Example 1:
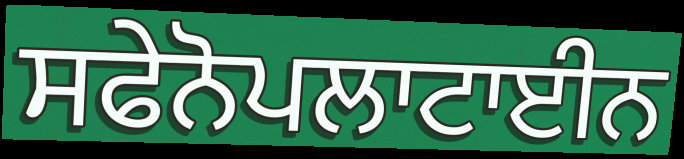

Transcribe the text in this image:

ਸਫੇਨੋਪਲਾਟਾਈਨ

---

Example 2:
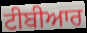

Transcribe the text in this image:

ਟੀਬੀਆਰ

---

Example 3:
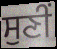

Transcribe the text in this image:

ਸੁਣੀਂ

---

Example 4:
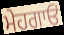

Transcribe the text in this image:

ਮੇਹਗਾਓਂ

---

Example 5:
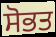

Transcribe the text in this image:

ਸੋਭਤ